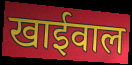
खाईवाल